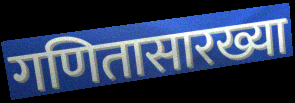
गणितासारख्या